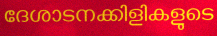
ദേശാടനക്കിളികളുടെ